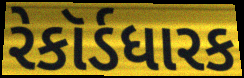
રેકૉર્ડધારક